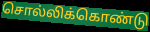
சொல்லிக்கொண்டு